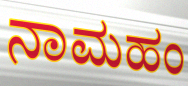
ನಾಮಹಂ